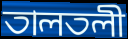
তালতলী